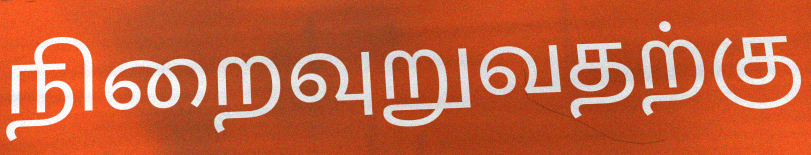
நிறைவுறுவதற்கு